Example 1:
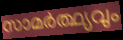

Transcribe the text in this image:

സാമർത്ഥ്യവും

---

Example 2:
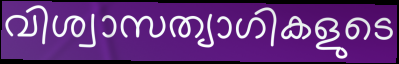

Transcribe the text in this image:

വിശ്വാസത്യാഗികളുടെ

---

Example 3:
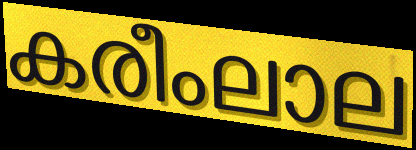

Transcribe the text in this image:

കരീംലാല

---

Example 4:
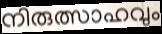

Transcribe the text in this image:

നിരുത്സാഹവും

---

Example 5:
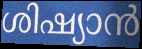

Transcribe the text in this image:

ശിഷ്യാൻ